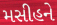
મસીહને